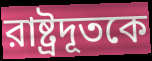
রাষ্ট্রদূতকে